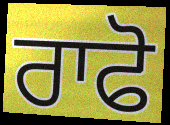
ਰਾਫੋ